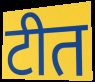
टीत